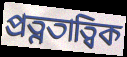
প্রত্নতাত্বিক